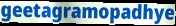
geetagramopadhye